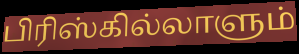
பிரிஸ்கில்லாளும்